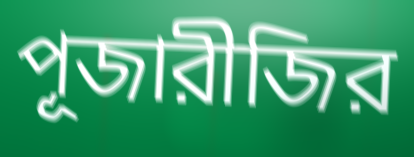
পূজারীজির